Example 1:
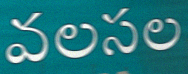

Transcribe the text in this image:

వలసల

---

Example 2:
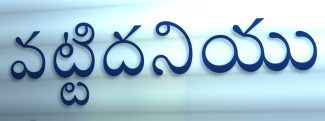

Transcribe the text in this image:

వట్టిదనియు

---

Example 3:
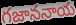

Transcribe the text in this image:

గజాననాయ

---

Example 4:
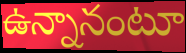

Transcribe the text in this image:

ఉన్నానంటూ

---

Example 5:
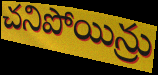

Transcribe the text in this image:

చనిపోయిన్రు